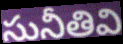
సునీతివి